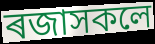
ৰজাসকলে